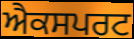
ਐਕਸਪਰਟ